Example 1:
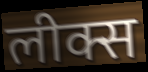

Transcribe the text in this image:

लीक्स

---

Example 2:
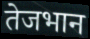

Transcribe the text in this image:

तेजभान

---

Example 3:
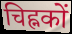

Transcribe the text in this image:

चिह्नकों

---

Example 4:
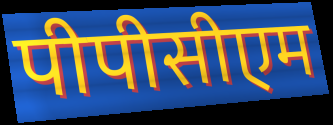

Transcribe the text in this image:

पीपीसीएम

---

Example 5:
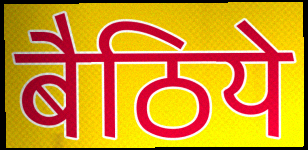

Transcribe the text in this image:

बैठिये